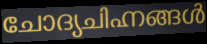
ചോദ്യചിഹ്നങ്ങൾ